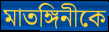
মাতঙ্গিনীকে